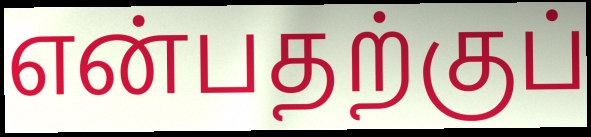
என்பதற்குப்